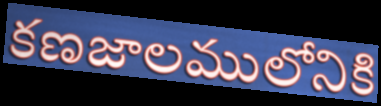
కణజాలములోనికి